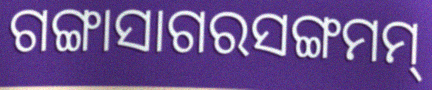
ଗଙ୍ଗାସାଗରସଙ୍ଗମମ୍